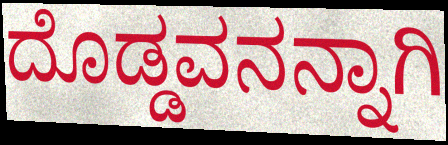
ದೊಡ್ಡವನನ್ನಾಗಿ